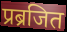
प्रब्रजित